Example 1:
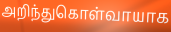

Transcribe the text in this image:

அறிந்துகொள்வாயாக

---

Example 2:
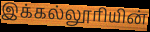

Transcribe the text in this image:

இக்கல்லூரியின்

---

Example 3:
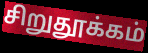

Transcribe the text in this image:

சிறுதூக்கம்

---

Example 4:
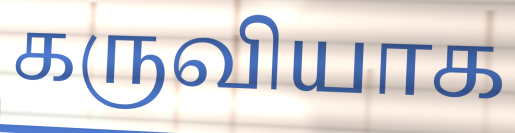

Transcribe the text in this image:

கருவியாக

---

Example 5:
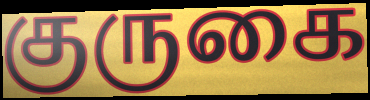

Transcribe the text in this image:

குருகை